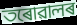
তৰোৱালৰ